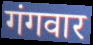
गंगवार